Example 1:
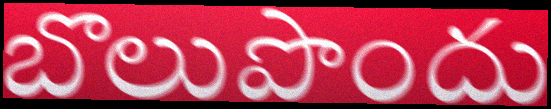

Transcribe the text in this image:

బొలుపొందు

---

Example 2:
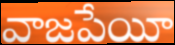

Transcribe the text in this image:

వాజపేయీ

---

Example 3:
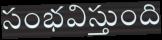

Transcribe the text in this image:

సంభవిస్తుంది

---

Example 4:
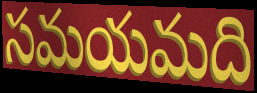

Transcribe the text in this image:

సమయమది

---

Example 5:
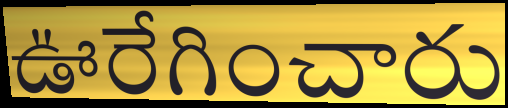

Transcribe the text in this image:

ఊరేగించారు